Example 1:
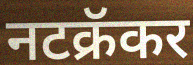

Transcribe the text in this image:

नटक्रॅकर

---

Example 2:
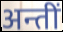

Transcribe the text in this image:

अन्तीं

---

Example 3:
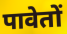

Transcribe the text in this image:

पावेतों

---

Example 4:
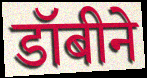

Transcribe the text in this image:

डॉबीने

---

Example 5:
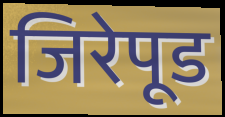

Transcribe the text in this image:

जिरेपूड